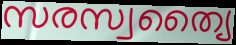
സരസ്വത്യൈ